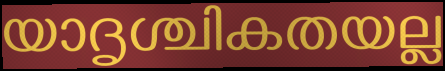
യാദൃശ്ചികതയല്ല